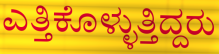
ಎತ್ತಿಕೊಳ್ಳುತ್ತಿದ್ದರು